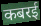
कबरई